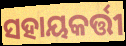
ସହାୟକର୍ତ୍ତୀ